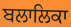
ਬਲਾਲਿਕਾ